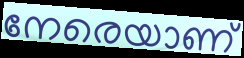
നേരെയാണ്